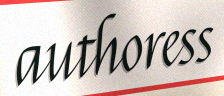
authoress